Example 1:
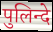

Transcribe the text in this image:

पुलिन्दे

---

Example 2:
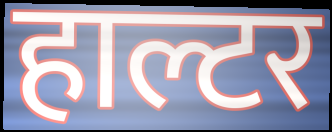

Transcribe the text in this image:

हाल्टर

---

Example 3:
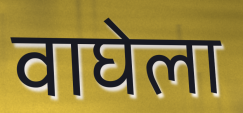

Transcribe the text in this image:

वाघेला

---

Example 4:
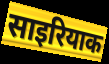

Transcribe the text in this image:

साइरियाक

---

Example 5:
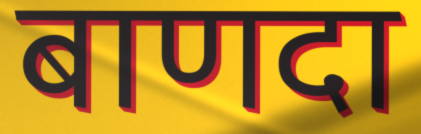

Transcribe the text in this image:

बाणदा